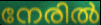
നേരിൽ